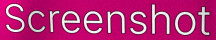
Screenshot